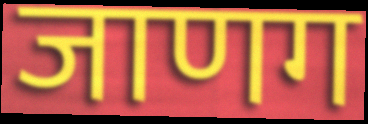
जाणग